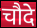
चौदे